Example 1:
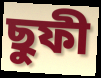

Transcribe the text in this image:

ছুফী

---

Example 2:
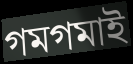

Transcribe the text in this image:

গমগমাই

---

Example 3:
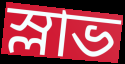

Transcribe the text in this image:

স্লাভ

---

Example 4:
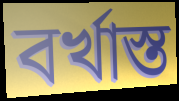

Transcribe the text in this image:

বৰ্খাস্ত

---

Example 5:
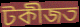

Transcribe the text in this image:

টকীজত